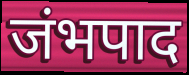
जंभपाद